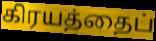
கிரயத்தைப்